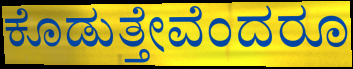
ಕೊಡುತ್ತೇವೆಂದರೂ